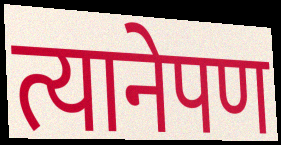
त्यानेपण